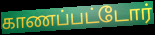
காணப்பட்டோர்